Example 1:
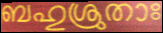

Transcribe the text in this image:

ബഹുശ്രുതാഃ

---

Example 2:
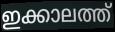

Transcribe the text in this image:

ഇക്കാലത്ത്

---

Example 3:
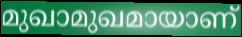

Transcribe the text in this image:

മുഖാമുഖമായാണ്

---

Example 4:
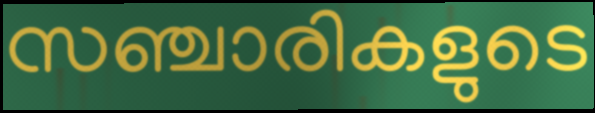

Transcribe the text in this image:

സഞ്ചാരികളുടെ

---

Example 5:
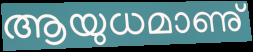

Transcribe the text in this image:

ആയുധമാണു്